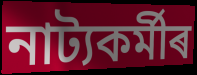
নাট্যকৰ্মীৰ